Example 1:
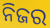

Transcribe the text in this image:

ନିଜର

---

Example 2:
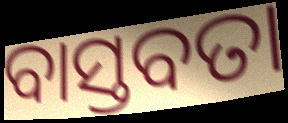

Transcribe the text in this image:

ବାସ୍ତବତା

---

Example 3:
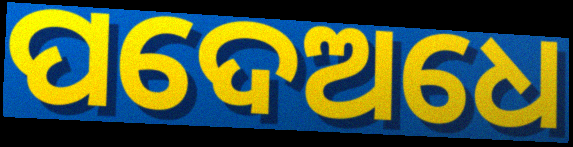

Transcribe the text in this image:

ପଦେଅଧେ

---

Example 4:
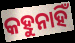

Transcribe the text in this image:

କହୁନାହିଁ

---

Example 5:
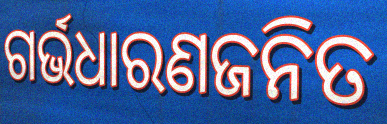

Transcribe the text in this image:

ଗର୍ଭଧାରଣଜନିତ